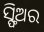
ସ୍ଫିଅର